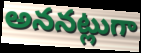
అననట్లుగా